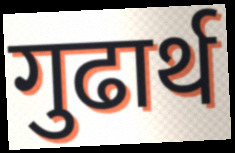
गुढार्थ